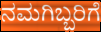
ನಮಗಿಬ್ಬರಿಗೆ